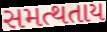
સમત્થતાય